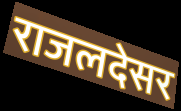
राजलदेसर